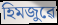
হিমজুৱে